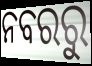
ନବରରୁ